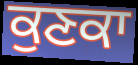
ਕੁਣਕਾ